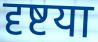
दृष्टया